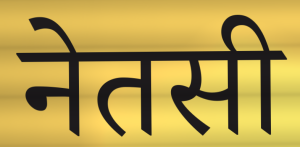
नेतसी